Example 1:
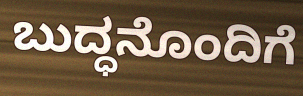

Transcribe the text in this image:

ಬುದ್ಧನೊಂದಿಗೆ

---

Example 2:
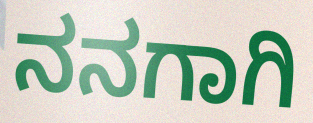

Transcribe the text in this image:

ನನಗಾಗಿ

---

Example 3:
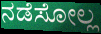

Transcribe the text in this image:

ನಡೆಸೋಲ್ಲ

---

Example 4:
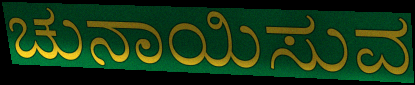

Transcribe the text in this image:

ಚುನಾಯಿಸುವ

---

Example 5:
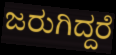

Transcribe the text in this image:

ಜರುಗಿದ್ದರೆ